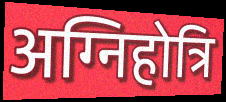
अग्निहोत्रि